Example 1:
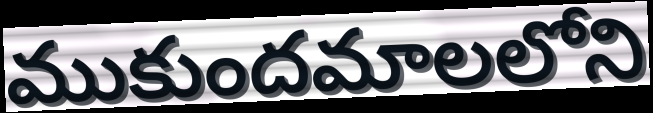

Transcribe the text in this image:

ముకుందమాలలోని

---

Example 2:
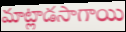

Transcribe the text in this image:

మాట్లాడసాగాయి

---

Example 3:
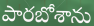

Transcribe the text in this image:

పారబోశాను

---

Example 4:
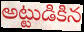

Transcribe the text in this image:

అట్టుడికిన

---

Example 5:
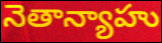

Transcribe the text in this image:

నెతాన్యాహు